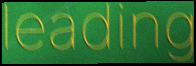
leading